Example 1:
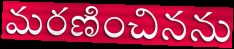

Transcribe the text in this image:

మరణించినను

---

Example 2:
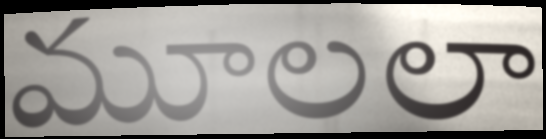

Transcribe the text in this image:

మూలలా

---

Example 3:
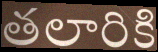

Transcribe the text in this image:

తలారికి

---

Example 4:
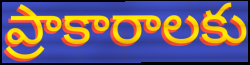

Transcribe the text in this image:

ప్రాకారాలకు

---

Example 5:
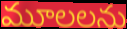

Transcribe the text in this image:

మూలలను